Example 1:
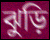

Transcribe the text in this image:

ঝুড়ি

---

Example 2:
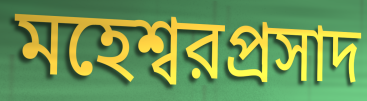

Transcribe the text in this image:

মহেশ্বরপ্রসাদ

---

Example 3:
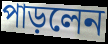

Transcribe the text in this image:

পাড়লেন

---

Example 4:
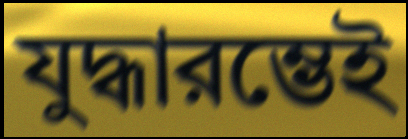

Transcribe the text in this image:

যুদ্ধারম্ভেই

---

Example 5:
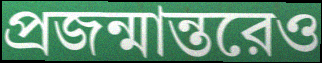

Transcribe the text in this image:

প্রজন্মান্তরেও